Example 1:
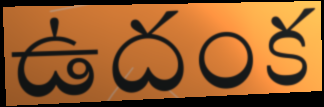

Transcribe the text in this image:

ఉదంక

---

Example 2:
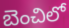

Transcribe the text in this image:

బెంచిలో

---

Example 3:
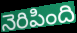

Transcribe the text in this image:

నెరిపింది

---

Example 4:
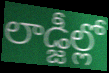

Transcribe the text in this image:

లాడ్జీల్లో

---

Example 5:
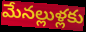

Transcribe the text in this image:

మేనల్లుళ్లకు